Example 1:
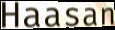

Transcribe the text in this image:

Haasan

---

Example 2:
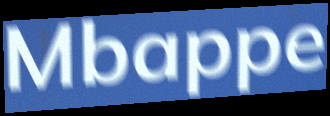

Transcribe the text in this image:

Mbappe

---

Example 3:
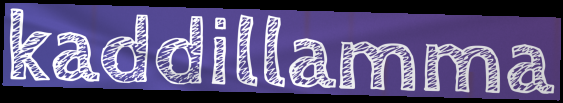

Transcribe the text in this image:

kaddillamma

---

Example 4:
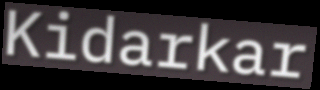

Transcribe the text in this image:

Kidarkar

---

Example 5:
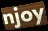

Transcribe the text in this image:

njoy